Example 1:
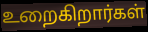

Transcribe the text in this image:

உறைகிறார்கள்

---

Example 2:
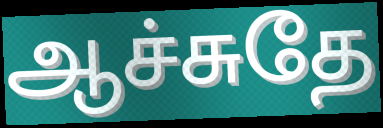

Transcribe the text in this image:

ஆச்சுதே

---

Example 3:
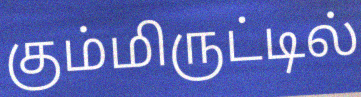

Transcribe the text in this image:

கும்மிருட்டில்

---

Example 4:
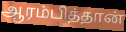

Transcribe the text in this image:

ஆரம்பித்தான்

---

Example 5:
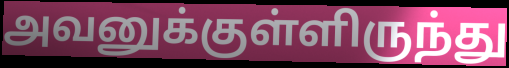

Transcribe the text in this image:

அவனுக்குள்ளிருந்து